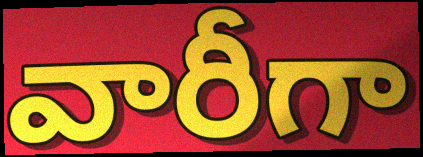
వారీగా